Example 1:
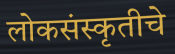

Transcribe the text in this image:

लोकसंस्कृतीचे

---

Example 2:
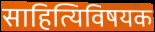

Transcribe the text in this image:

साहित्यिविषयक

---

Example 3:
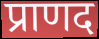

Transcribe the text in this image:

प्राणद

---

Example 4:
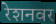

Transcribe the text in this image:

रेशनवर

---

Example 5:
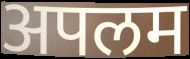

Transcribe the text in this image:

अपलम